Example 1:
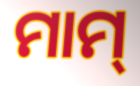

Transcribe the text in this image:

ମାମ୍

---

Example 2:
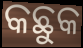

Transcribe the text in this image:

କଛୁକ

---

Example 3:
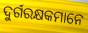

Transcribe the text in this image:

ଦୁର୍ଗରକ୍ଷକମାନେ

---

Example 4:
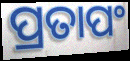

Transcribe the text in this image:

ପ୍ରତାପଂ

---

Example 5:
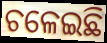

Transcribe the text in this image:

ଚଳେଇଛି